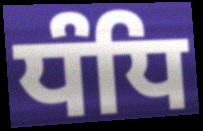
ਧੰਧਿ